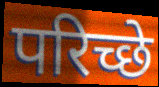
परिच्छे